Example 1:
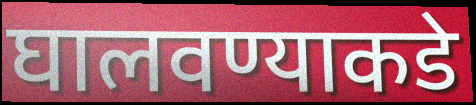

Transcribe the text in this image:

घालवण्याकडे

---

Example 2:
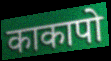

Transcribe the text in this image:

काकापो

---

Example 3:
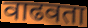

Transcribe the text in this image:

वाढवता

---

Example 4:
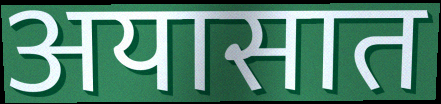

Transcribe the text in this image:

अयासात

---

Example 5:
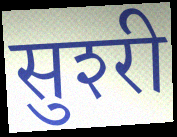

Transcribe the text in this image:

सुश्री